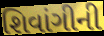
શિવાંગીની